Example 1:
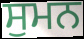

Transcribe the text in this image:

ਸੁਮਨ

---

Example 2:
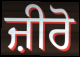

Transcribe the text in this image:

ਜ਼ੀਰੋ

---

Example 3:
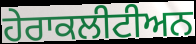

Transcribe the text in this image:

ਹੇਰਾਕਲੀਟੀਅਨ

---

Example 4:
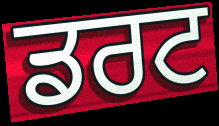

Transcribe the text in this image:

ਡਰਟ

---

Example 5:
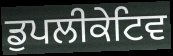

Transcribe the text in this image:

ਡੁਪਲੀਕੇਟਿਵ